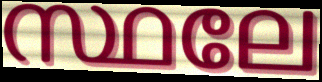
സ്ഥലേ